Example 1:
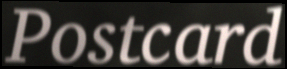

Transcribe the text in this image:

Postcard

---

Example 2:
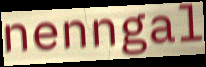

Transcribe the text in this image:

nenngal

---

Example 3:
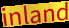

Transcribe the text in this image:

inland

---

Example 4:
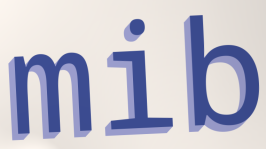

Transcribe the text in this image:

mib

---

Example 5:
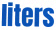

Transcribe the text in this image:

liters